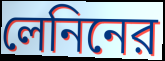
লেনিনের